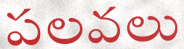
పలవలు